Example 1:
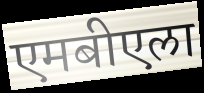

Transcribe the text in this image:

एमबीएला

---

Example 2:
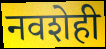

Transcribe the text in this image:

नवशेही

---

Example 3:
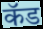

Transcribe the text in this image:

कॅड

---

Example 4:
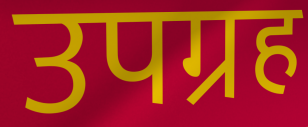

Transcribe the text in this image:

उपग्रह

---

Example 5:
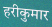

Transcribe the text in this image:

हरीकुमार